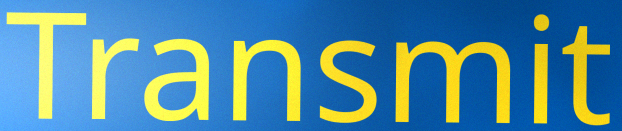
Transmit